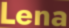
Lena